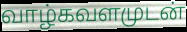
வாழ்கவளமுடன்